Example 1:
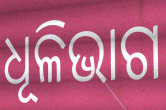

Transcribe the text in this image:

ଧୂଳିଭାଗ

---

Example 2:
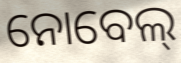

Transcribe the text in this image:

ନୋବେଲ୍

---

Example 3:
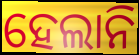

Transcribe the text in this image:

ହେଲାନି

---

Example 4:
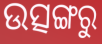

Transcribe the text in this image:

ଉତ୍ସଙ୍ଗରୁ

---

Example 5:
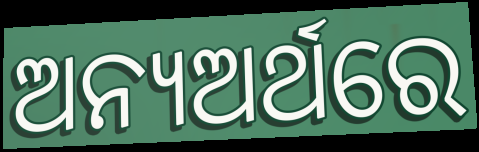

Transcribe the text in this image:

ଅନ୍ୟଅର୍ଥରେ